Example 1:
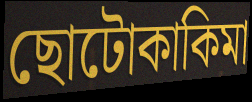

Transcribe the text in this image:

ছোটোকাকিমা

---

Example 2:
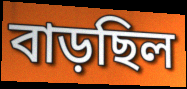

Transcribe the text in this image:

বাড়ছিল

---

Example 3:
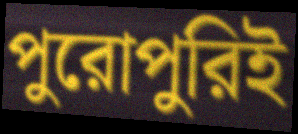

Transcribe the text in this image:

পুরোপুরিই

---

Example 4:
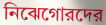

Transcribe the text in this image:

নিঝেগোরদের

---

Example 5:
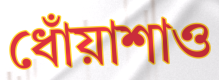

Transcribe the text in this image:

ধোঁয়াশাও